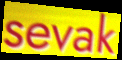
sevak